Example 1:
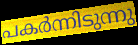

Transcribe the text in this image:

പകർന്നിടുന്നു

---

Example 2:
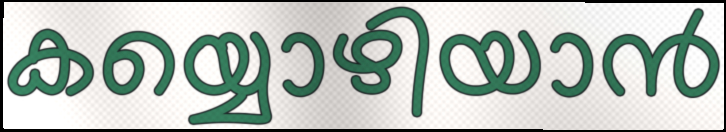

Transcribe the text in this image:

കയ്യൊഴിയാൻ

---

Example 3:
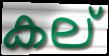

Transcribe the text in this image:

കല്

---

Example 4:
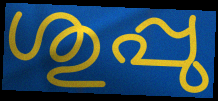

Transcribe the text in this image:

ശുപ്പു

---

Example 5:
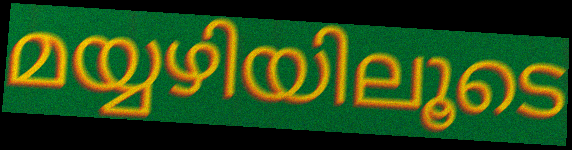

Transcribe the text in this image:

മയ്യഴിയിലൂടെ